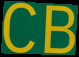
CB